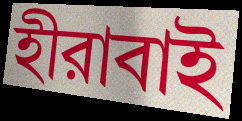
হীরাবাই